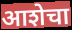
आशेचा